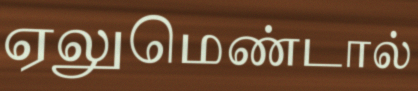
ஏலுமெண்டால்